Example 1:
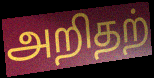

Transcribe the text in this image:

அறிதற்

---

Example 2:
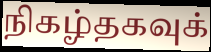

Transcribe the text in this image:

நிகழ்தகவுக்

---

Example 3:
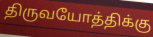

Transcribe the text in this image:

திருவயோத்திக்கு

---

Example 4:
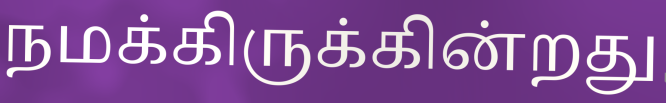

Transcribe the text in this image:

நமக்கிருக்கின்றது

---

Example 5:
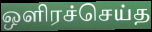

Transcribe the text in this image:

ஒளிரச்செய்த